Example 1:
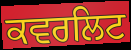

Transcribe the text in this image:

ਕਵਰਲਿਟ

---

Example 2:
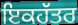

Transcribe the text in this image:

ਇਕਹੱਤਰ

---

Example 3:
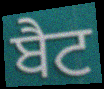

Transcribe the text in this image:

ਬੈਟ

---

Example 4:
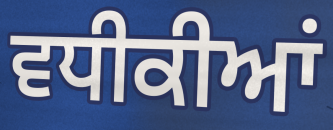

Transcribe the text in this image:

ਵਧੀਕੀਆਂ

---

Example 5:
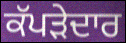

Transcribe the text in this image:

ਕੱਪੜੇਦਾਰ